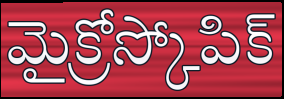
మైక్రోస్కోపిక్